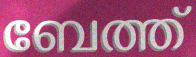
ബേത്ത്